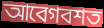
আবেগবশত